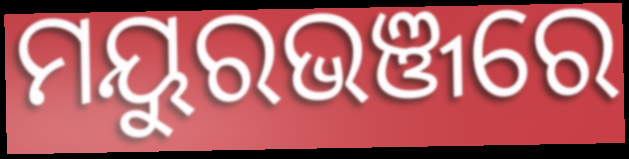
ମୟୁରଭଞ୍ଜରେ